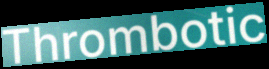
Thrombotic